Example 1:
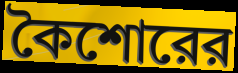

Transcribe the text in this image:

কৈশোরের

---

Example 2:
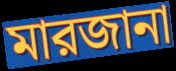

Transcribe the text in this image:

মারজানা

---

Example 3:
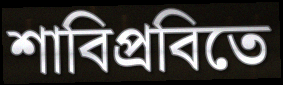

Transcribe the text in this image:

শাবিপ্রবিতে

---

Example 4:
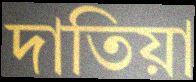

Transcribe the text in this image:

দাতিয়া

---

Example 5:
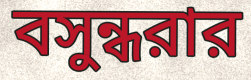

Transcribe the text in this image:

বসুন্ধরার